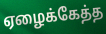
ஏழைக்கேத்த